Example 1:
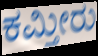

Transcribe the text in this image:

ಕಮ್ತೀರು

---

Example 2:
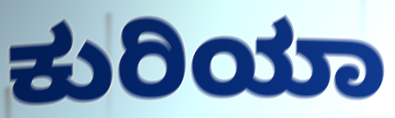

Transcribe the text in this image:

ಕುರಿಯಾ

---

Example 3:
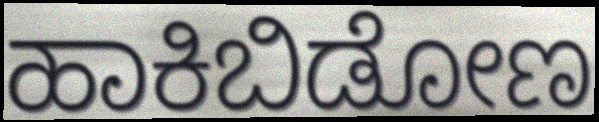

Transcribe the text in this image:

ಹಾಕಿಬಿಡೋಣ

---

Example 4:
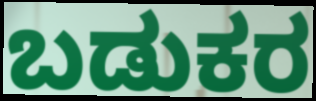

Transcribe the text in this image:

ಬಡುಕರ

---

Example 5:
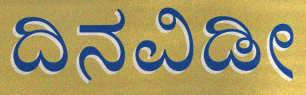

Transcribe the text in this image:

ದಿನವಿಡೀ